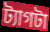
ট্যাগটা